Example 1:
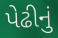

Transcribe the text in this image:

પેઢીનું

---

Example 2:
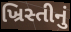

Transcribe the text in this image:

ખ્રિસ્તીનું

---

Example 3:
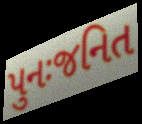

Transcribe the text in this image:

પુનઃજનિત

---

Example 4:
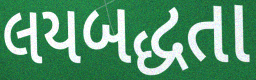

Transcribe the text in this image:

લયબદ્ધતા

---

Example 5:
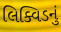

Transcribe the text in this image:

લિક્વિડનું